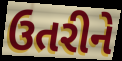
ઉતરીને